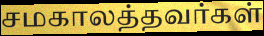
சமகாலத்தவர்கள்